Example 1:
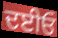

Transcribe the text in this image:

ਦਈਓ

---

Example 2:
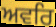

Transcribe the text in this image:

ਅਵਰਿ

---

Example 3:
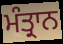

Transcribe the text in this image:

ਮੰਤ੍ਰਾਨ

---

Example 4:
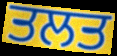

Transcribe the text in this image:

ਤਲਤ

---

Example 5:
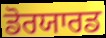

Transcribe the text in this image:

ਡੋਰਯਾਰਡ